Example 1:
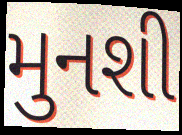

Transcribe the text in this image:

મુનશી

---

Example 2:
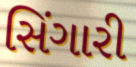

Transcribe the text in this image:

સિંગારી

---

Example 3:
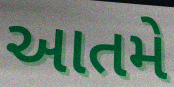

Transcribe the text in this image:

આતમે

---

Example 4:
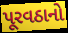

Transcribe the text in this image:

પૂરવઠાનો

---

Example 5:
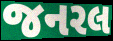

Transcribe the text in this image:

જનરલ